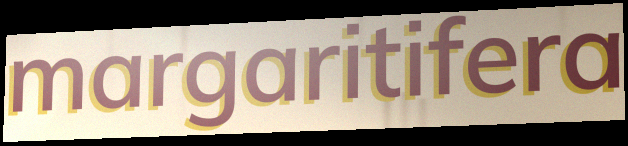
margaritifera